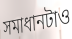
সমাধানটাও